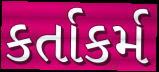
કર્તાકર્મ